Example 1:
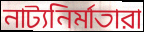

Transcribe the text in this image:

নাট্যনির্মাতারা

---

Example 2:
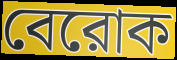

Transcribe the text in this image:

বেরোক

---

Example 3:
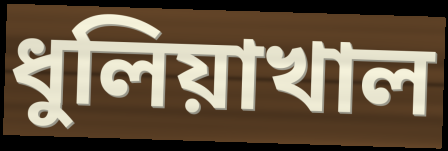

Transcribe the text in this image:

ধুলিয়াখাল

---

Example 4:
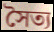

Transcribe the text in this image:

সৈত্য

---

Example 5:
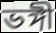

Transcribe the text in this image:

ভঙ্গী